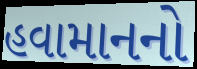
હવામાનનો